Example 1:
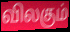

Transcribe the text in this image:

விலகும்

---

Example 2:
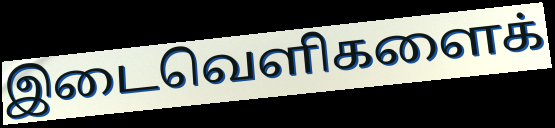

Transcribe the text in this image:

இடைவெளிகளைக்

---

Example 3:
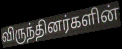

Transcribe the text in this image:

விருந்தினர்களின்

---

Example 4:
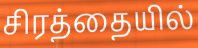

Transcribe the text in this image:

சிரத்தையில்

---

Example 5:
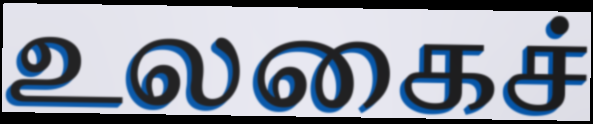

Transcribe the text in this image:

உலகைச்